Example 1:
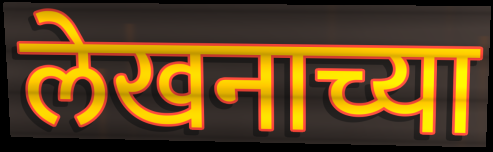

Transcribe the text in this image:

लेखनाच्या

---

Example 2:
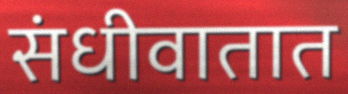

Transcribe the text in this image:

संधीवातात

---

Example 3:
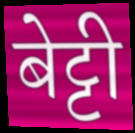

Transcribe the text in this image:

बेट्टी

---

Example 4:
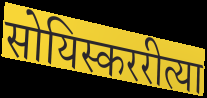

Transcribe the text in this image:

सोयिस्कररीत्या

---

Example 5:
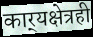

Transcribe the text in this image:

कार्यक्षेत्रही